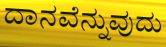
ದಾನವೆನ್ನುವುದು